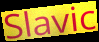
Slavic